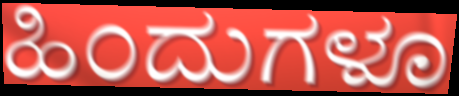
ಹಿಂದುಗಳೂ